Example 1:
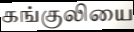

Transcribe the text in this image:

கங்குலியை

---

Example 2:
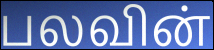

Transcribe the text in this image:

பலவின்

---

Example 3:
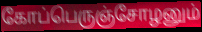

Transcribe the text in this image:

கோப்பெருஞ்சோழனும்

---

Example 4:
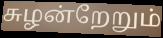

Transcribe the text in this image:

சுழன்றேறும்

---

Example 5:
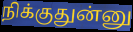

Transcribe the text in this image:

நிக்குதுன்னு